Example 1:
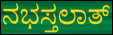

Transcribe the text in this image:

ನಭಸ್ತಲಾತ್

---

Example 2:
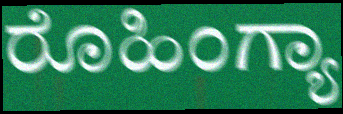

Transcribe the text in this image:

ರೊಹಿಂಗ್ಯಾ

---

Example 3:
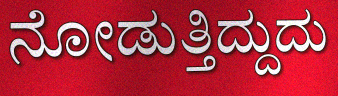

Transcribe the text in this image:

ನೋಡುತ್ತಿದ್ದುದು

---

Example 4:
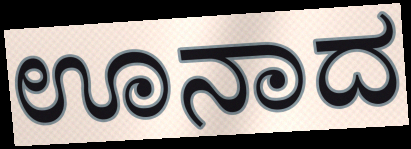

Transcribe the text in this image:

ಊನಾದ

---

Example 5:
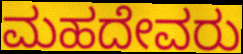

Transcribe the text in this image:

ಮಹದೇವರು